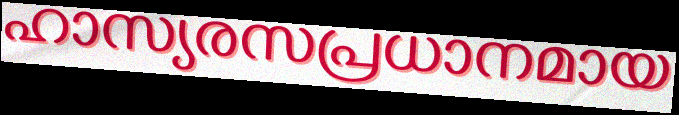
ഹാസ്യരസപ്രധാനമായ